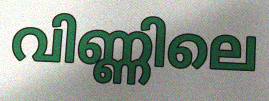
വിണ്ണിലെ